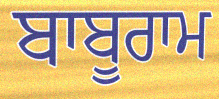
ਬਾਬੂਰਾਮ